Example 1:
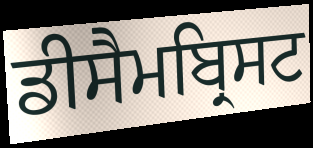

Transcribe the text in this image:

ਡੀਸੈਮਬ੍ਰਿਸਟ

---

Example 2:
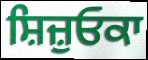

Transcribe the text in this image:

ਸ਼ਿਜ਼ੁਓਕਾ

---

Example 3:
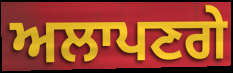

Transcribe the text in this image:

ਅਲਾਪਣਗੇ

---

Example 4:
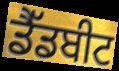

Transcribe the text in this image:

ਡੈੱਡਬੀਟ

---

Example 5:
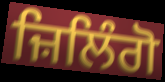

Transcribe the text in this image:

ਜ਼ਿਲਿੰਗੋ